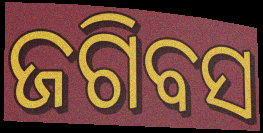
ଜଗିବସ